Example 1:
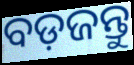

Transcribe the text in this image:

ବଡ଼ଜନ୍ତୁ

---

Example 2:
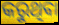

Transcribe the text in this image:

କରୁଥିବା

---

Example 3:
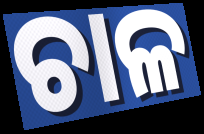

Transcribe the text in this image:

ଚାଳ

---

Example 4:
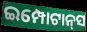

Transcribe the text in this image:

ଇମ୍ପୋଟାନ୍‌ସ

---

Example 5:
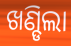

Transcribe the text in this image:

ଖଣ୍ଡିଲା